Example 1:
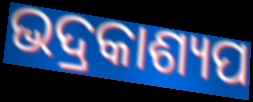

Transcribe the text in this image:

ଭଦ୍ରକାଶ୍ୟପ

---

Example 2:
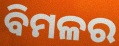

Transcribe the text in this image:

ବିମଳର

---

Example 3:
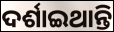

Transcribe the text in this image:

ଦର୍ଶାଇଥାନ୍ତି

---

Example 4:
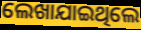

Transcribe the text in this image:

ଲେଖାଯାଇଥିଲେ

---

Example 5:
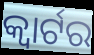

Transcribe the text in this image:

କ୍ଵାର୍ଟର